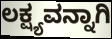
ಲಕ್ಷ್ಯವನ್ನಾಗಿ